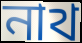
নাথ